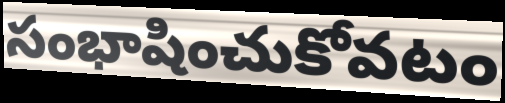
సంభాషించుకోవటం